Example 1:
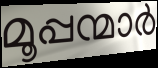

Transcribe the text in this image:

മൂപ്പന്മാർ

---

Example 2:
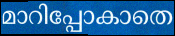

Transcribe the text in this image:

മാറിപ്പോകാതെ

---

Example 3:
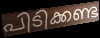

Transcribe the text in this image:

പിടിക്കണ്ട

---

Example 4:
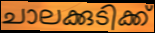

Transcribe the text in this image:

ചാലക്കുടിക്ക്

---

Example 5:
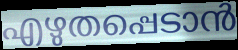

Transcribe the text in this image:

എഴുതപ്പെടാൻ